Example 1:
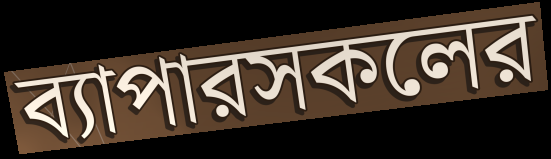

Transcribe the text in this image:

ব্যাপারসকলের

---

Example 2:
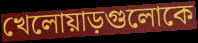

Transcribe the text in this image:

খেলোয়াড়গুলোকে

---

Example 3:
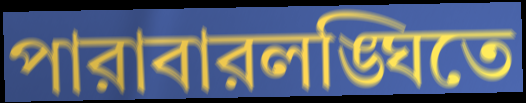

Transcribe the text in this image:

পারাবারলঙ্ঘিতে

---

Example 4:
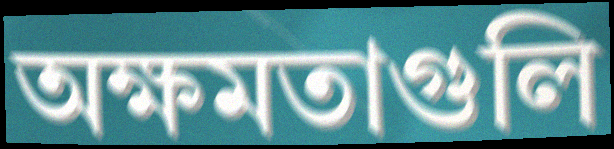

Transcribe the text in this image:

অক্ষমতাগুলি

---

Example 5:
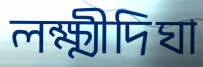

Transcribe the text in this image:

লক্ষ্মীদিঘা